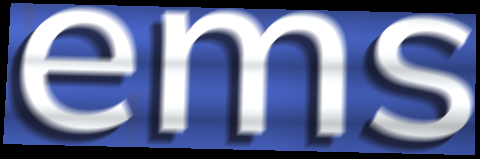
ems